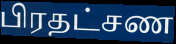
பிரதட்சண